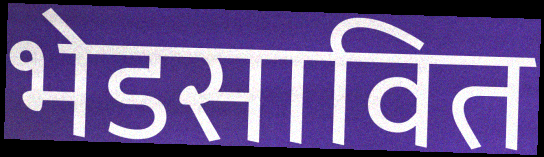
भेडसावित